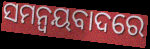
ସମନ୍ୱୟବାଦରେ